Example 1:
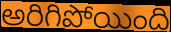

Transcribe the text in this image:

అరిగిపోయింది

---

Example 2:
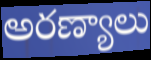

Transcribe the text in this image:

అరణ్యాలు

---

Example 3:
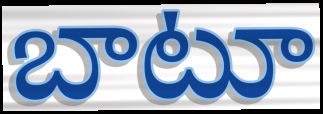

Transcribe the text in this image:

బాటూ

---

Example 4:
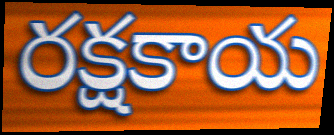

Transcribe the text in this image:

రక్షకాయ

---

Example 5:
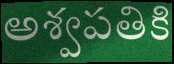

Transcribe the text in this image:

అశ్వపతికి